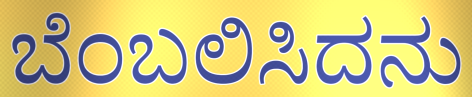
ಬೆಂಬಲಿಸಿದನು